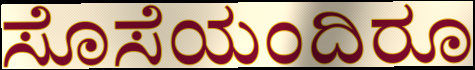
ಸೊಸೆಯಂದಿರೂ